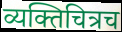
व्यक्तिचित्रच